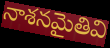
నాశనమైతివి